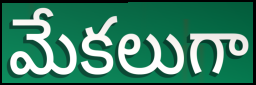
మేకలుగా